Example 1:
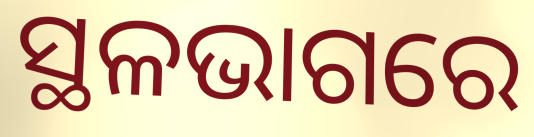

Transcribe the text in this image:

ସ୍ଥଳଭାଗରେ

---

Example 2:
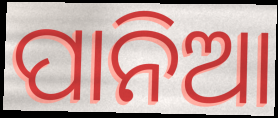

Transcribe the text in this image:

ପାନିଆ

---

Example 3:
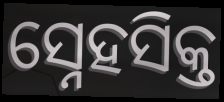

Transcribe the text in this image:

ସ୍ନେହସିକ୍ତ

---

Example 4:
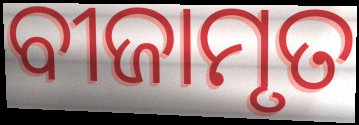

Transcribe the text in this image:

ବୀଜାମୃତ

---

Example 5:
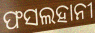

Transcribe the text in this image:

ଫସଲହାନୀ